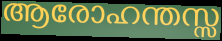
ആരോഹന്തസ്സ